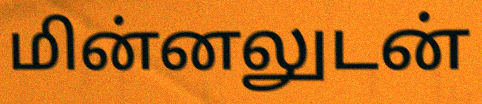
மின்னலுடன்